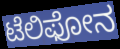
ಟೆಲಿಫೋನ